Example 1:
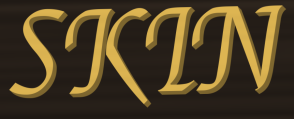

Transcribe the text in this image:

SKIN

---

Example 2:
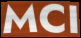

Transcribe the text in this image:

MCI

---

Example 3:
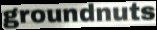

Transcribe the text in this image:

groundnuts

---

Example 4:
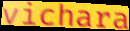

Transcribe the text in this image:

vichara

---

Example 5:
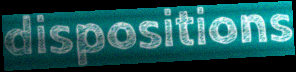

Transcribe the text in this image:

dispositions